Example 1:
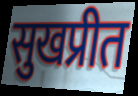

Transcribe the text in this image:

सुखप्रीत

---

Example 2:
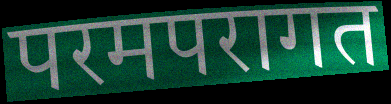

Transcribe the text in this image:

परमपरागत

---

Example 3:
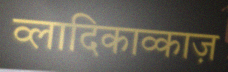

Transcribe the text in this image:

व्लादिकाव्काज़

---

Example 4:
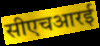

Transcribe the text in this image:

सीएचआरई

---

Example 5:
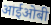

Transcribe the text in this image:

आईओबी